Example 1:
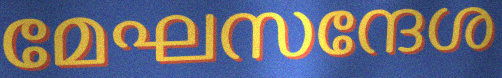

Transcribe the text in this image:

മേഘസന്ദേശ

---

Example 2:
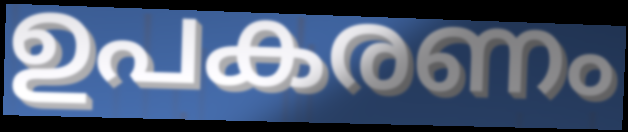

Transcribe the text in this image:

ഉപകരണം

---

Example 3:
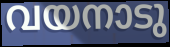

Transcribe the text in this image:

വയനാടു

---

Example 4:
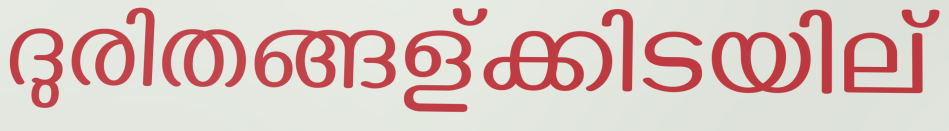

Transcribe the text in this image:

ദുരിതങ്ങള്ക്കിടയില്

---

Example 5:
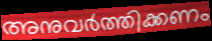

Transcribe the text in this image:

അനുവർത്തിക്കണം